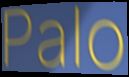
Palo